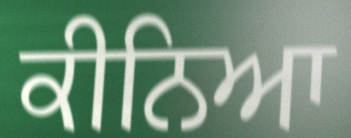
ਕੀਨਿਆ